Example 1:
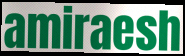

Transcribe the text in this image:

amiraesh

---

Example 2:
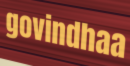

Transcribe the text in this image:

govindhaa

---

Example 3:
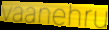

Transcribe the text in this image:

vaanehru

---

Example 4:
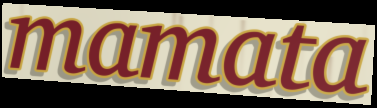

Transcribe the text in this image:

mamata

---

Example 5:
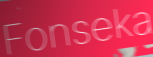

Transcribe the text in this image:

Fonseka